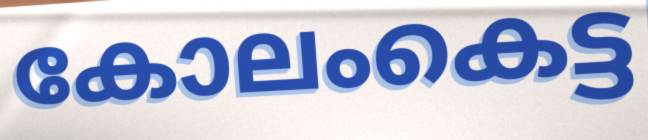
കോലംകെട്ട